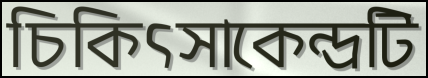
চিকিৎসাকেন্দ্রটি